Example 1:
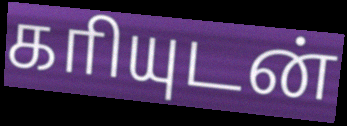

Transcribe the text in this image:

கரியுடன்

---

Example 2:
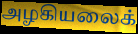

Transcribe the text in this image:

அழகியலைக்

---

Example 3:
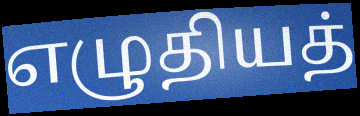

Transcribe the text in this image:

எழுதியத்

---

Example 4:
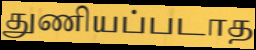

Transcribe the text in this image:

துணியப்படாத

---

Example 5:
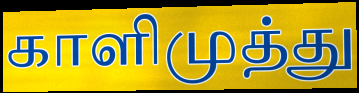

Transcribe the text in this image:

காளிமுத்து